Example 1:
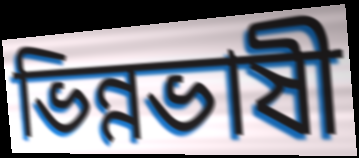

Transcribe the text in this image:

ভিন্নভাষী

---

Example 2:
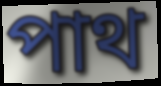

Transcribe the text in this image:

পাথ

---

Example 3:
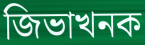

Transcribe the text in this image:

জিভাখনক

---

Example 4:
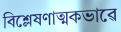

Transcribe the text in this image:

বিশ্লেষণাত্মকভাৱে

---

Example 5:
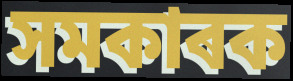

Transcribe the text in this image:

সমকাৰক